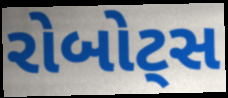
રોબોટ્સ